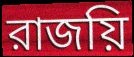
রাজয়ি